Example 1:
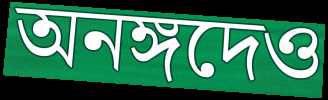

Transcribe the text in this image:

অনঙ্গদেও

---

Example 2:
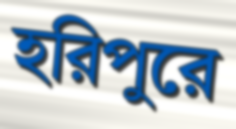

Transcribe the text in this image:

হরিপুরে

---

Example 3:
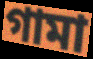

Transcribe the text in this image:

গামা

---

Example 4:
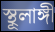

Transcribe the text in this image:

স্থূলাঙ্গী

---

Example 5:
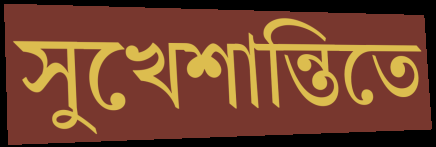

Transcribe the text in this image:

সুখেশান্তিতে